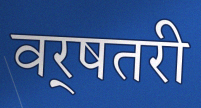
वर्षतरी